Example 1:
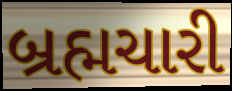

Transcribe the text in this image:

બ્રહ્મચારી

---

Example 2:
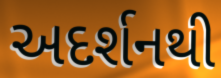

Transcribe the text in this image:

અદર્શનથી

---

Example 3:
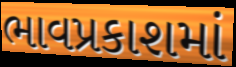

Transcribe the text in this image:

ભાવપ્રકાશમાં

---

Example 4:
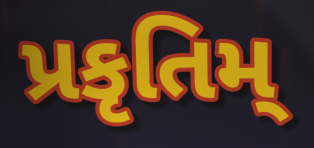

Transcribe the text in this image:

પ્રકૃતિમ્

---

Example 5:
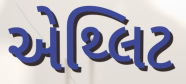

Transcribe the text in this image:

એથ્લિટ